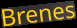
Brenes